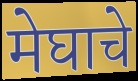
मेघाचे